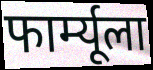
फार्म्यूला